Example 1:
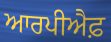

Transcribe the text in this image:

ਆਰਪੀਐਫ਼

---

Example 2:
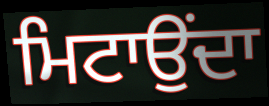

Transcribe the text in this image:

ਮਿਟਾਉਂਦਾ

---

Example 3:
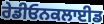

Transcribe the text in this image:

ਰੇਡੀਓਨਕਲਾਈਡ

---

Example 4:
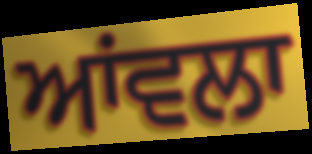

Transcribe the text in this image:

ਆਂਵਲਾ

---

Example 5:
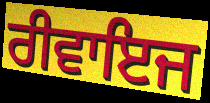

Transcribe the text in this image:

ਰੀਵਾਇਜ